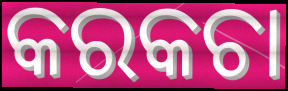
କରକଚା